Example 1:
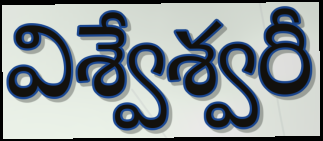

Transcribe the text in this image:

విశ్వేశ్వరీ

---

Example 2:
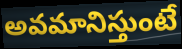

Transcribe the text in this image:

అవమానిస్తుంటే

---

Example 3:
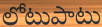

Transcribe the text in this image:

లోటుపాటు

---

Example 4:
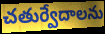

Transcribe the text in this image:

చతుర్వేదాలను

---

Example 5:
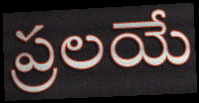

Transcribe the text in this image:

ప్రలయే